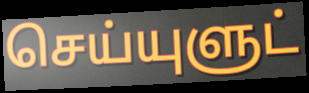
செய்யுளுட்